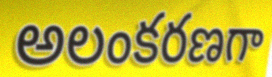
అలంకరణగా